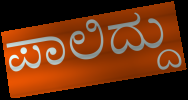
ಪಾಲಿದ್ದು